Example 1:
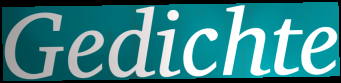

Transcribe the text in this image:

Gedichte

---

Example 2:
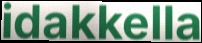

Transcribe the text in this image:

idakkella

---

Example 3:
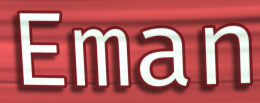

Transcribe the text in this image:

Eman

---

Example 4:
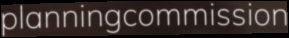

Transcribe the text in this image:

planningcommission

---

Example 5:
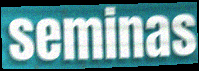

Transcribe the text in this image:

seminas